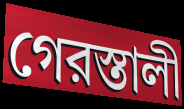
গেরস্তালী